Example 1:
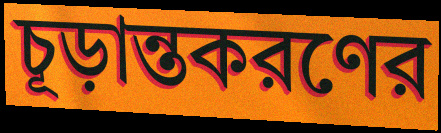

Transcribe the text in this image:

চূড়ান্তকরণের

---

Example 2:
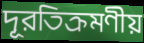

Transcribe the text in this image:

দূরতিক্রমণীয়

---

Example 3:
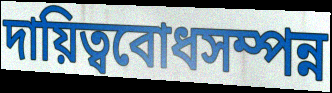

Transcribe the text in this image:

দায়িত্ববোধসম্পন্ন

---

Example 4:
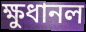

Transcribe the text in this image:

ক্ষুধানল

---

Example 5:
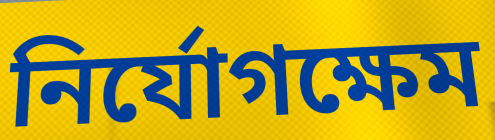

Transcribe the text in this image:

নির্যোগক্ষেম